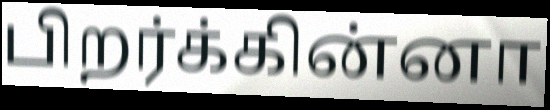
பிறர்க்கின்னா